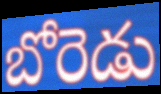
బోరెడు